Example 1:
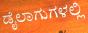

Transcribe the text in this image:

ಡೈಲಾಗುಗಳಲ್ಲಿ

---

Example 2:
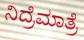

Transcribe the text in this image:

ನಿದ್ರೆಮಾತ್ರೆ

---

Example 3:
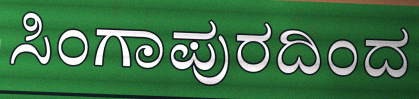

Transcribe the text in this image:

ಸಿಂಗಾಪುರದಿಂದ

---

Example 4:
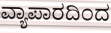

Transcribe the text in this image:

ವ್ಯಾಪಾರದಿಂದ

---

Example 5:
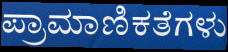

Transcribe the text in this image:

ಪ್ರಾಮಾಣಿಕತೆಗಳು